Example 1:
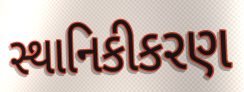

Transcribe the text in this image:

સ્થાનિકીકરણ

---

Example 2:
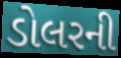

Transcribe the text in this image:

ડોલરની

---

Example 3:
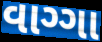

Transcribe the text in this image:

વાગ્ગા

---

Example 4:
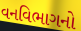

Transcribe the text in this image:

વનવિભાગનો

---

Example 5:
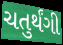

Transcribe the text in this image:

ચતુર્થંગી